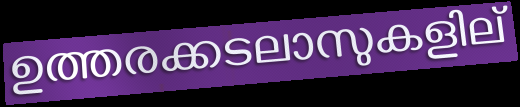
ഉത്തരക്കടലാസുകളില്